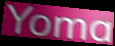
Yoma